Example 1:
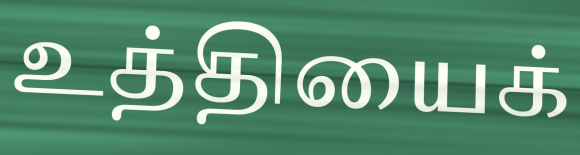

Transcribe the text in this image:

உத்தியைக்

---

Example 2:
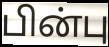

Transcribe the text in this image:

பின்பு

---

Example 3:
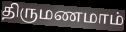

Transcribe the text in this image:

திருமணமாம்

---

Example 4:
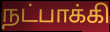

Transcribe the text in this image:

நட்பாக்கி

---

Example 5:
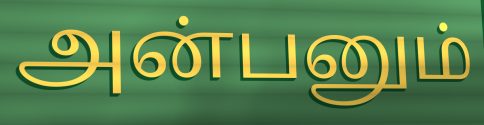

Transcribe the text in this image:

அன்பனும்